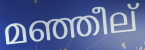
മഞ്ഞീല്